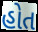
હોત